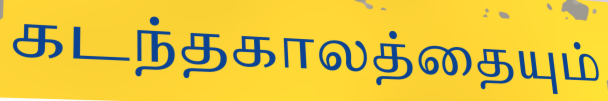
கடந்தகாலத்தையும்